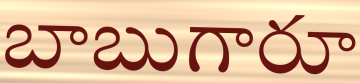
బాబుగారూ